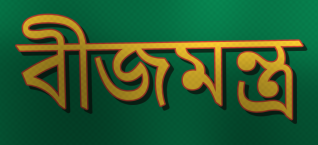
বীজমন্ত্র